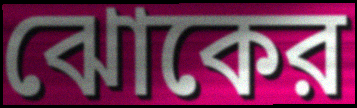
ঝোকের